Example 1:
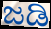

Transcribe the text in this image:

ಜಡಿ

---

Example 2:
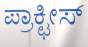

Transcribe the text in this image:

ಪ್ರಾಕ್ಟೀಸ್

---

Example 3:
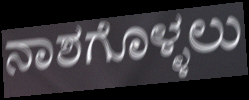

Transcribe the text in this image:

ನಾಶಗೊಳ್ಳಲು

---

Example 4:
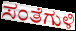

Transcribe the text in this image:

ಸಂತೆಗುಳಿ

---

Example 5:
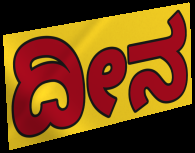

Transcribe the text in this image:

ದೀನ